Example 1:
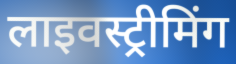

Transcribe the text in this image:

लाइवस्ट्रीमिंग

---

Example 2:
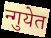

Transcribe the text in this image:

न्गुयेत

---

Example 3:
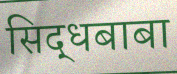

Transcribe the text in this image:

सिद्धबाबा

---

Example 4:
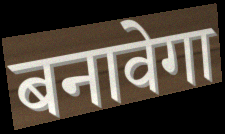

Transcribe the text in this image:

बनावेगा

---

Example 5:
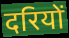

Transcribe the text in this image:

दरियों